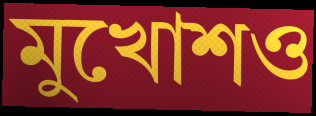
মুখোশও